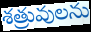
శత్రువులను